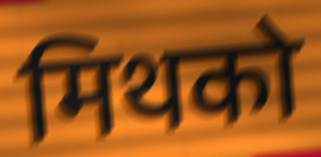
मिथको